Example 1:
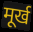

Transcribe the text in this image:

मूर्ख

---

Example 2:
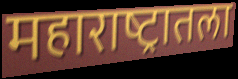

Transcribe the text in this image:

महाराष्ट्रातला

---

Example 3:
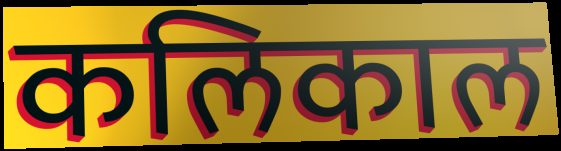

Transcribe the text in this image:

कलिकाल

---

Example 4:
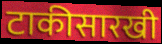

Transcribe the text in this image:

टाकीसारखी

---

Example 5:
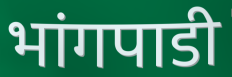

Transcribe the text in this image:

भांगपाडी